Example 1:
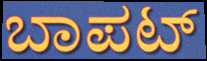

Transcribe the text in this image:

ಬಾಪಟ್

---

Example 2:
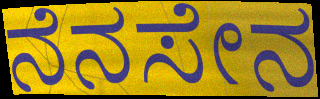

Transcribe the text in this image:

ನೆನಸೇನ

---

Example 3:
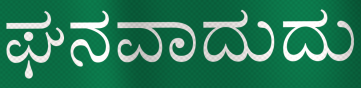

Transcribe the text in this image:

ಘನವಾದುದು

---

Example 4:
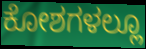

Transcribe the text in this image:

ಕೋಶಗಳಲ್ಲೂ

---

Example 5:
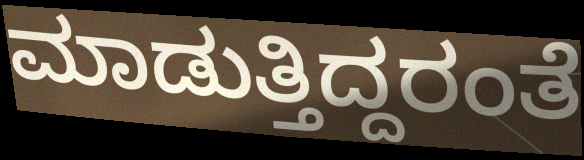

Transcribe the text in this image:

ಮಾಡುತ್ತಿದ್ದರಂತೆ